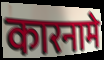
कारनामे